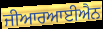
ਜੀਆਰਆਈਐਨ